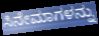
ಸಿನೇಮಾಗಳನ್ನು